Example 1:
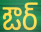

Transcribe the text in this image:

ఔర్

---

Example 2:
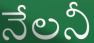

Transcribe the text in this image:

నేలనీ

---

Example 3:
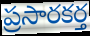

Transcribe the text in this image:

ప్రసారకర్త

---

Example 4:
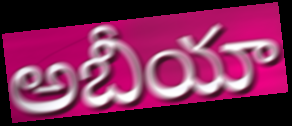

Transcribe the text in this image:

అబీయా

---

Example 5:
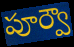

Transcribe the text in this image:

పూర్వౌ